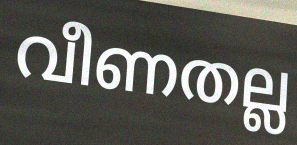
വീണതല്ല